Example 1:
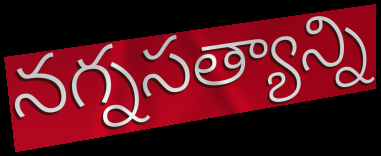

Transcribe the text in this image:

నగ్నసత్యాన్ని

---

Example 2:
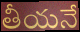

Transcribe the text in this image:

తీయనే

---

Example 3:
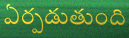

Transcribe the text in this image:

ఏర్పడుతుంది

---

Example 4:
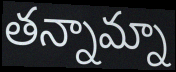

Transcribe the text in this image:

తన్నామ్నా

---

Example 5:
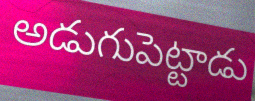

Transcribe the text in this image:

అడుగుపెట్టాడు